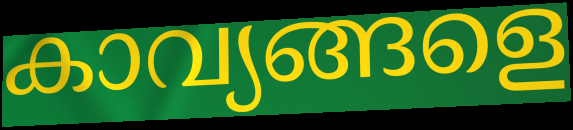
കാവ്യങ്ങളെ